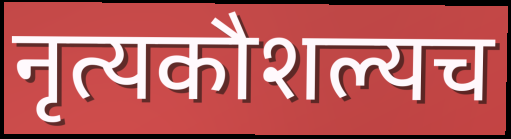
नृत्यकौशल्यच